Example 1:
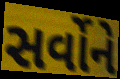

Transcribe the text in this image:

સર્વોને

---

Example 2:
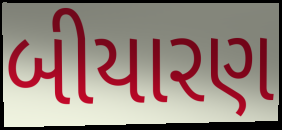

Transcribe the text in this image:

બીયારણ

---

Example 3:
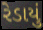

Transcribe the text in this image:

રેડાયું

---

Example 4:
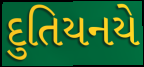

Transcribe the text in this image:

દુતિયનયે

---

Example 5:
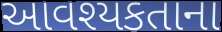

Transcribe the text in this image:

આવશ્યકતાના